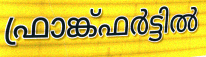
ഫ്രാങ്ക്ഫർട്ടിൽ